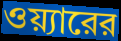
ওয়্যারের